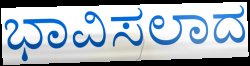
ಭಾವಿಸಲಾದ